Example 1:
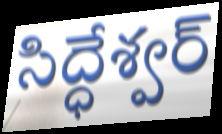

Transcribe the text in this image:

సిద్ధేశ్వర్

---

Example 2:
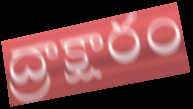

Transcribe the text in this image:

ద్రాక్షారం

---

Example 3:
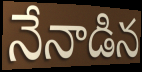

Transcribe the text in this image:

నేనాడిన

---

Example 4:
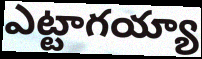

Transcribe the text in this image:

ఎట్టాగయ్యా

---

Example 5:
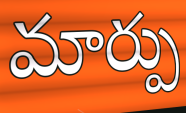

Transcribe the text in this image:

మార్పు